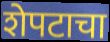
शेपटाचा